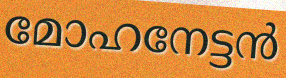
മോഹനേട്ടൻ